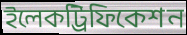
ইলেকট্রিফিকেশন